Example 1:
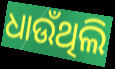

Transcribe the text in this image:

ଧାଉଁଥିଲି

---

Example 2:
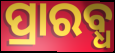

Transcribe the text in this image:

ପ୍ରାରବ୍ଧ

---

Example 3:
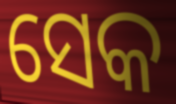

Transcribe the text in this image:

ସେକ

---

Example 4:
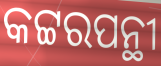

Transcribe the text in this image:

କଟ୍ଟରପନ୍ଥୀ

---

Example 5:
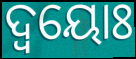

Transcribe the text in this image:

ଦ୍ବୟୋଃ